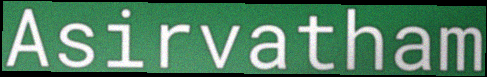
Asirvatham